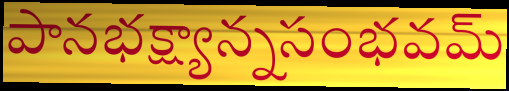
పానభక్ష్యాన్నసంభవమ్